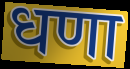
धणा